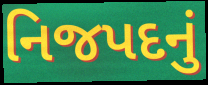
નિજપદનું